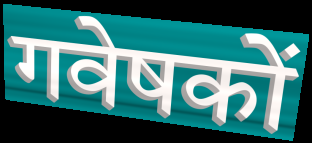
गवेषकों